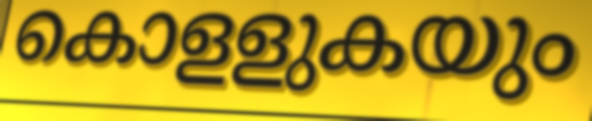
കൊളളുകയും